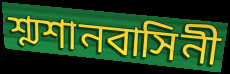
শ্মশানবাসিনী